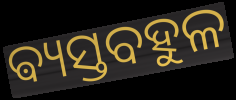
ଵ୍ୟସ୍ତବହୁଳ